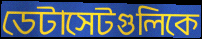
ডেটাসেটগুলিকে